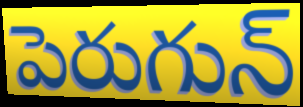
పెరుగున్